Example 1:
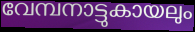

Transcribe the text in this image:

വേമ്പനാട്ടുകായലും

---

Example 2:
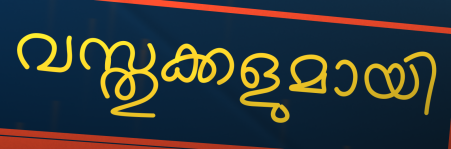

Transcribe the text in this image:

വസ്തുക്കളുമായി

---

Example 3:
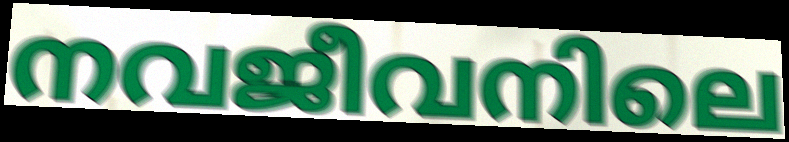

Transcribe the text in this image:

നവജീവനിലെ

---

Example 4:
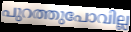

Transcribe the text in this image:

പുറത്തുപോവില്ല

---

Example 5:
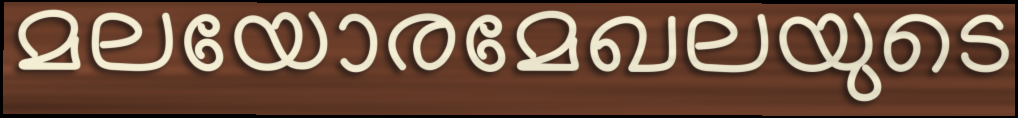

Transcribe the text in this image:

മലയോരമേഖലയുടെ